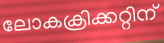
ലോകക്രിക്കറ്റിന്